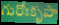
గురోఃకృపా